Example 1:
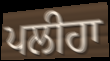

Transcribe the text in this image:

ਪਲੀਹਾ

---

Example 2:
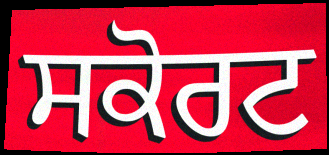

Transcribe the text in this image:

ਸਕੋਰਟ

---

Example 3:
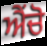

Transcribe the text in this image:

ਐਂਚੋ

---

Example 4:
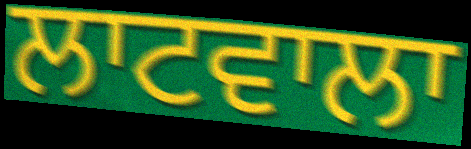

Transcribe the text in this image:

ਲਾਟਵਾਲਾ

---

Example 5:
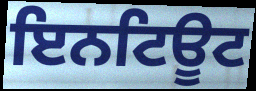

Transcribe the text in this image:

ਇਨਟਿਊਟ